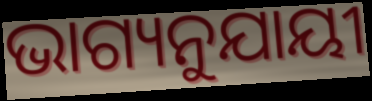
ଭାଗ୍ୟନୁଯାୟୀ